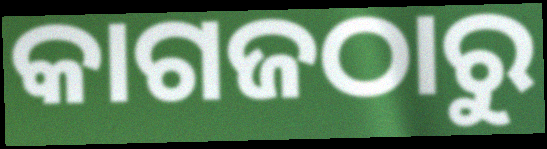
କାଗଜଠାରୁ